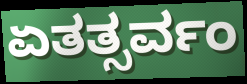
ಏತತ್ಸರ್ವಂ